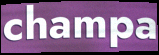
champa